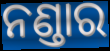
ନଣ୍ଡାର